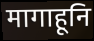
मागाहूनि